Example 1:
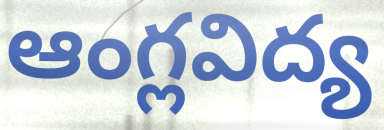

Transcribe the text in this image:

ఆంగ్లవిద్య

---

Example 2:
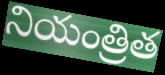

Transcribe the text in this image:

నియంత్రిత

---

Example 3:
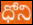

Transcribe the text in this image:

ధోని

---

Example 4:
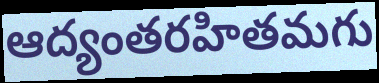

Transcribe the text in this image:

ఆద్యంతరహితమగు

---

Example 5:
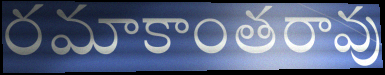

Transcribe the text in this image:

రమాకాంతరావు